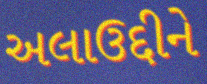
અલાઉદ્દીને